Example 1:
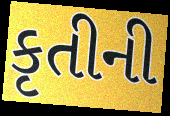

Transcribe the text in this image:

કૃતીની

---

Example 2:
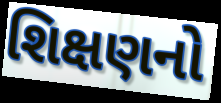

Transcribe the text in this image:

શિક્ષણનો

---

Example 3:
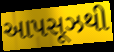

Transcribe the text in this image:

આપસૂઝથી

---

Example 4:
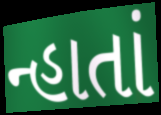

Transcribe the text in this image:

ન્હાતાં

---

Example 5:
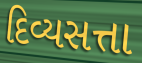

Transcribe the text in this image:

દિવ્યસત્તા